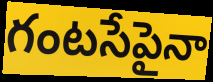
గంటసేపైనా